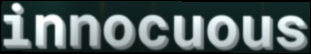
innocuous